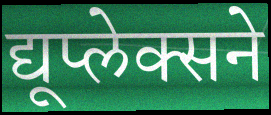
द्यूप्लेक्सने